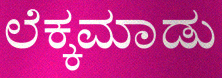
ಲೆಕ್ಕಮಾಡು